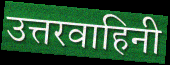
उत्तरवाहिनी